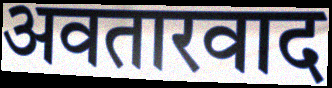
अवतारवाद